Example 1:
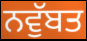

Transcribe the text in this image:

ਨਵੁੱਬਤ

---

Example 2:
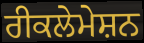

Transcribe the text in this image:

ਰੀਕਲੇਮੇਸ਼ਨ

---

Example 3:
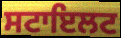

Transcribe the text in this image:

ਸਟਾਇਲਟ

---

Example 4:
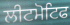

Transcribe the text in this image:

ਲੀਟਮੋਟਿਫ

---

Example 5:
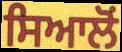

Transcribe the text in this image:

ਸਿਆਲੋਂ